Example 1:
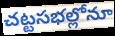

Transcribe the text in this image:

చట్టసభల్లోనూ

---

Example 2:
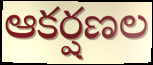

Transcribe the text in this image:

ఆకర్షణల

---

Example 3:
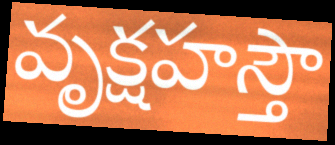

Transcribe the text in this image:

వృక్షహస్తౌ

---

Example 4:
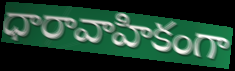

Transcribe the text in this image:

ధారావాహికంగా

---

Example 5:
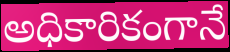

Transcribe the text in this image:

అధికారికంగానే